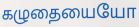
கழுதையையோ